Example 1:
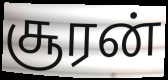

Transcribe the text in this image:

சூரன்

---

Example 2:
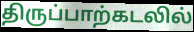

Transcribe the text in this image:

திருப்பாற்கடலில்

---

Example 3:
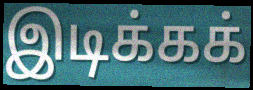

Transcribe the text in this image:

இடிக்கக்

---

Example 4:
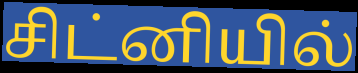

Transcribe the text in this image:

சிட்னியில்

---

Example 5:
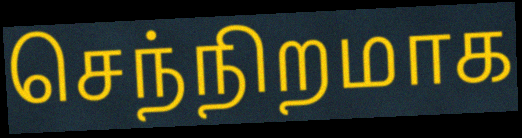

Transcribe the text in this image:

செந்நிறமாக